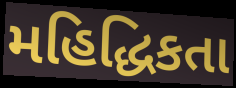
મહિદ્ધિકતા